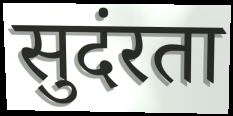
सुदंरता